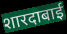
शारदाबाई